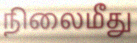
நிலைமீது